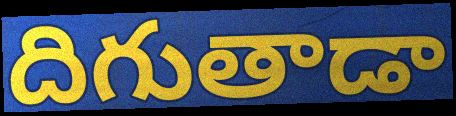
దిగుతాడా